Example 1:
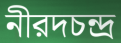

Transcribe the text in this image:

নীরদচন্দ্র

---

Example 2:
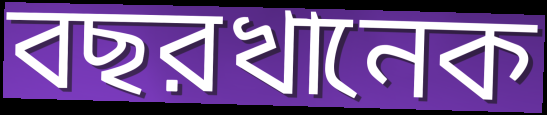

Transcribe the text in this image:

বছরখানেক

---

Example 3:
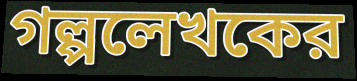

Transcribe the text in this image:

গল্পলেখকের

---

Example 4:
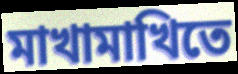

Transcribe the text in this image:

মাখামাখিতে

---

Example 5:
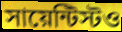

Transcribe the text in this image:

সায়েন্টিস্টও